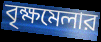
বৃক্ষমেলার